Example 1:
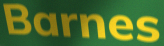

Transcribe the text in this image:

Barnes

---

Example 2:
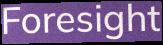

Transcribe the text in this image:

Foresight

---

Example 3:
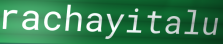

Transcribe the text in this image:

rachayitalu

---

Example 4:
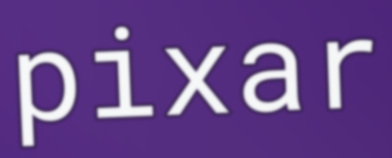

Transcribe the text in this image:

pixar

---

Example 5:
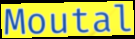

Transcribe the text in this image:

Moutal